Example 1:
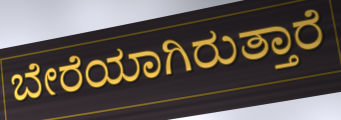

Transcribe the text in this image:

ಬೇರೆಯಾಗಿರುತ್ತಾರೆ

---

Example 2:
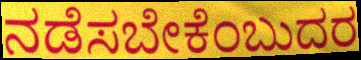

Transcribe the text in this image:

ನಡೆಸಬೇಕೆಂಬುದರ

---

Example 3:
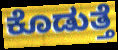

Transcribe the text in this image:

ಕೊಡುತ್ತೆ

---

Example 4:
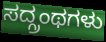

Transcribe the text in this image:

ಸದ್ಗ್ರಂಥಗಳು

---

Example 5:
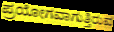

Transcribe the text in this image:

ಪ್ರಯೋಗವಾಗುತ್ತಿರುವ